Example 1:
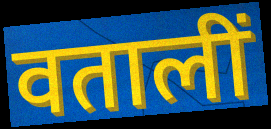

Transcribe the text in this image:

वतालीं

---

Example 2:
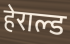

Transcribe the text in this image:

हेराल्ड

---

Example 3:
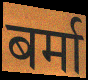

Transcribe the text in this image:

बर्मा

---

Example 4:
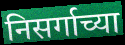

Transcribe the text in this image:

निसर्गाच्या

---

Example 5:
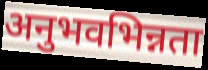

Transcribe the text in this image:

अनुभवभिन्नता